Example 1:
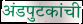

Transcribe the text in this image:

अंडपुटकांची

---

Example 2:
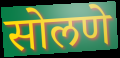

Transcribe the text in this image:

सोलणे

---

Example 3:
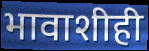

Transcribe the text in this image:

भावाशीही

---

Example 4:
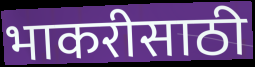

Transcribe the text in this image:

भाकरीसाठी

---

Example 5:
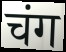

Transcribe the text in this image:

चंग